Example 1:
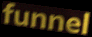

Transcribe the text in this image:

funnel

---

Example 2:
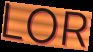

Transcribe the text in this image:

LOR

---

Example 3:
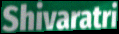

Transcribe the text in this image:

Shivaratri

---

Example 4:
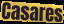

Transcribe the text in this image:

Casares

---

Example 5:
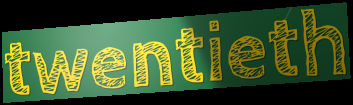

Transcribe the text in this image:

twentieth